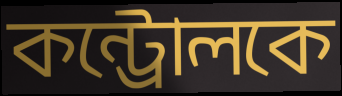
কন্ট্রোলকে